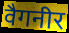
वैगनीर